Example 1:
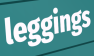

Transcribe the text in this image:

leggings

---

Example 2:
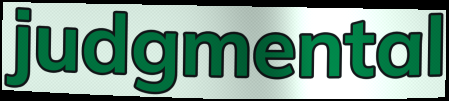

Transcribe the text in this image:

judgmental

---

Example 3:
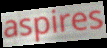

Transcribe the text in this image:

aspires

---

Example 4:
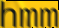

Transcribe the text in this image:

hmm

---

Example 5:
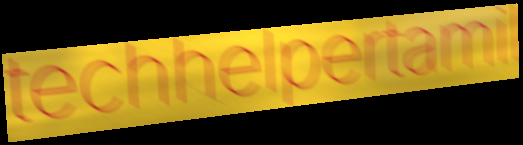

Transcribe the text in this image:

techhelpertamil